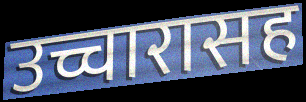
उच्चारासह